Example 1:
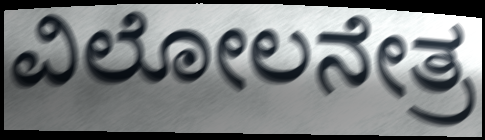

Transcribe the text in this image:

ವಿಲೋಲನೇತ್ರ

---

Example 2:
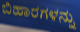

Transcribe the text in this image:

ಬಿಹಾರಗಳನ್ನು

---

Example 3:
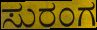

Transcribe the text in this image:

ಸುರಂಗ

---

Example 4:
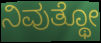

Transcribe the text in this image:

ನಿವುತ್ಥೋ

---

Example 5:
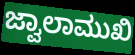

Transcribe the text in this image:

ಜ್ವಾಲಾಮುಖಿ